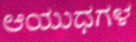
ಆಯುಧಗಳ